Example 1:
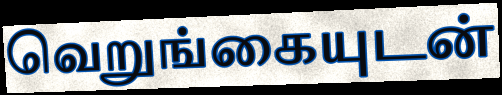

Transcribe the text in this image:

வெறுங்கையுடன்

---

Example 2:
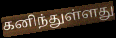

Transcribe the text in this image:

கனிந்துள்ளது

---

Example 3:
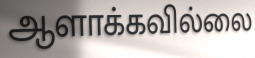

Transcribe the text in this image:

ஆளாக்கவில்லை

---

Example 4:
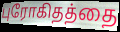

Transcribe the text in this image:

புரோகிதத்தை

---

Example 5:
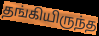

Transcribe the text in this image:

தங்கியிருந்த